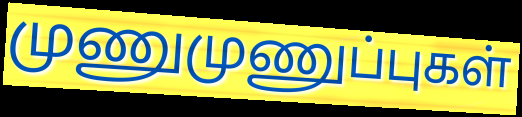
முணுமுணுப்புகள்